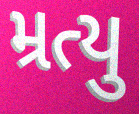
મ્રત્યુ